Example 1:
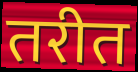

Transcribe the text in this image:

तरीत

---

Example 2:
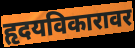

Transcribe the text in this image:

हृदयविकारावर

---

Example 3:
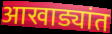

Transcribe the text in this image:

आखाड्यांत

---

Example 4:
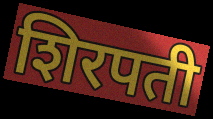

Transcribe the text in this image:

शिरपती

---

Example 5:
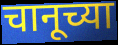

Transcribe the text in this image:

चानूच्या